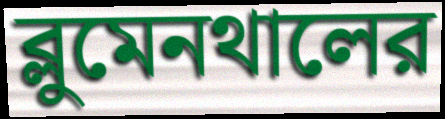
ব্লুমেনথালের